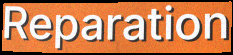
Reparation